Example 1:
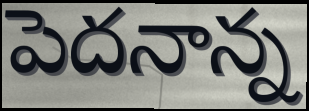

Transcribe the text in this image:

పెదనాన్న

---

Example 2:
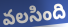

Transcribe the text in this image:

వలసింది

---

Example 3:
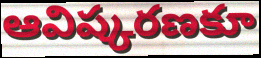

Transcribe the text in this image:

ఆవిష్కరణకూ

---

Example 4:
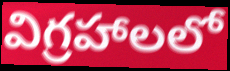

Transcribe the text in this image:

విగ్రహాలలో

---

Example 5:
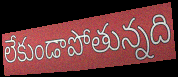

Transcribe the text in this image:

లేకుండాపోతున్నది